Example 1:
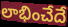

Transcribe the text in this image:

లాభించేదే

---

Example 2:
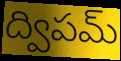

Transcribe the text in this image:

ద్విపమ్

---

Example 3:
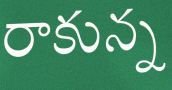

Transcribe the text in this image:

రాకున్న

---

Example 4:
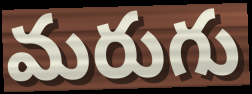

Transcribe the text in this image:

మరుగు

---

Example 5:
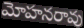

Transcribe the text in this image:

మోహనరావు